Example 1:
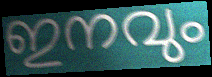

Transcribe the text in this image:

ഇനവും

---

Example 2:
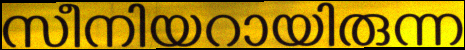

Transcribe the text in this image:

സീനിയറായിരുന്ന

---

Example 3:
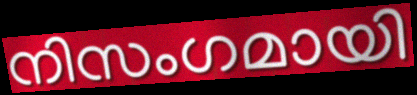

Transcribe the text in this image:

നിസംഗമായി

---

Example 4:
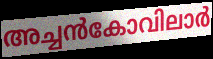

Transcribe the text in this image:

അച്ചൻകോവിലാർ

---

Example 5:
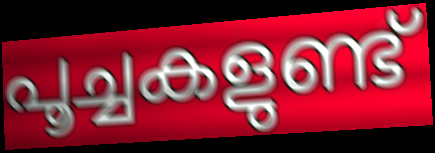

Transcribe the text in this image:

പൂച്ചകളുണ്ട്